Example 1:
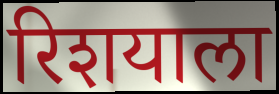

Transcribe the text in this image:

रिशयाला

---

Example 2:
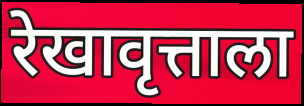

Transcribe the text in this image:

रेखावृत्ताला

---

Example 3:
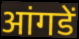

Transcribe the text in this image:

आंगडें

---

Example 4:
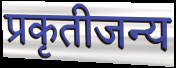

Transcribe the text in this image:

प्रकृतीजन्य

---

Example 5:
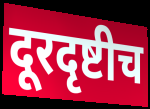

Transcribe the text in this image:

दूरदृष्टीच